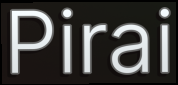
Pirai